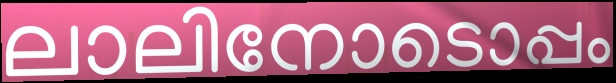
ലാലിനോടൊപ്പം